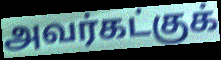
அவர்கட்குக்